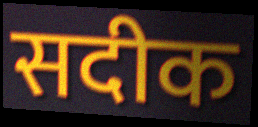
सदीक